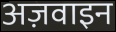
अज़वाइन